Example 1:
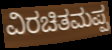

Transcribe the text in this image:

ವಿರಚಿತಮಪ್ಪ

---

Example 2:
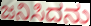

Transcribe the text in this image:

ಜನಿಸಿದನು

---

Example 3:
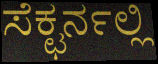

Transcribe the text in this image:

ಸೆಕ್ಟರ್ನಲ್ಲಿ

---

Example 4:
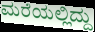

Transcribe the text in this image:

ಮರೆಯಲ್ಲಿದ್ದು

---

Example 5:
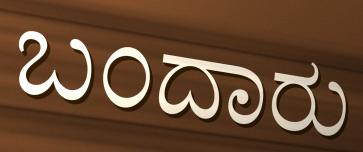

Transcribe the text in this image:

ಬಂದಾರು